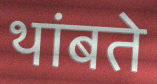
थांबते